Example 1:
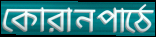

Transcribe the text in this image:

কোরানপাঠে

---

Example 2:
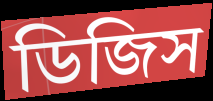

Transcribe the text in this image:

ডিজিস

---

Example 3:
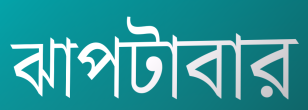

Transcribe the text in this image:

ঝাপটাবার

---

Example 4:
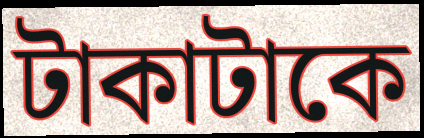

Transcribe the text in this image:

টাকাটাকে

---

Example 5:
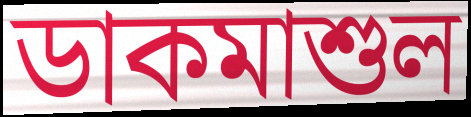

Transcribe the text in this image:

ডাকমাশুল